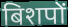
बिशपों